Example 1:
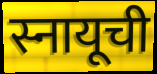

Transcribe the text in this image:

स्नायूची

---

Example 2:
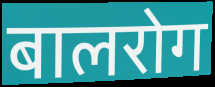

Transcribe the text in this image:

बालरोग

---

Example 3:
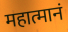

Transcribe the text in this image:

महात्मानं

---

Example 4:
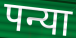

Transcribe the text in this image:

पन्या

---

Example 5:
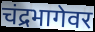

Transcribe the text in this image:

चंद्रभागेवर